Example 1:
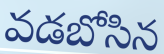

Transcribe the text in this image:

వడబోసిన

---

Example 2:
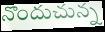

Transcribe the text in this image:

నొందుచున్న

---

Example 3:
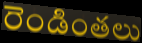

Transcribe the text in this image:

రెండింతలు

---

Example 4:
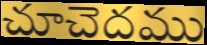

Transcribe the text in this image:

చూచెదము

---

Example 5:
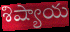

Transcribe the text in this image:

శిష్యాయ